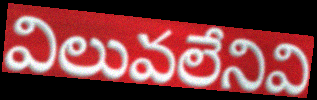
విలువలేనివి